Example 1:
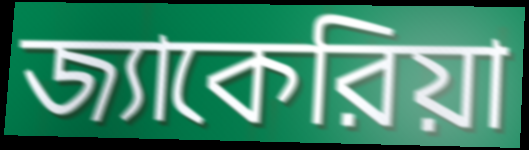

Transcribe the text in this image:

জ্যাকেরিয়া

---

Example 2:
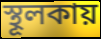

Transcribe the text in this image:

স্থূলকায়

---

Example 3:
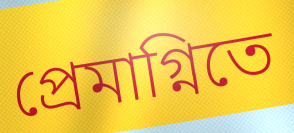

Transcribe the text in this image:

প্রেমাগ্নিতে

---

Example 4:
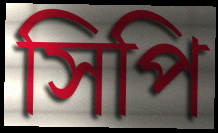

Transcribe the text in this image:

সিপি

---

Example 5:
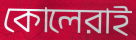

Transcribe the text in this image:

কোলেরাই